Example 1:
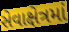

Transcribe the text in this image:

સેવાક્ષેત્રમાં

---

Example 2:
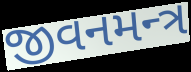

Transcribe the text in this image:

જીવનમન્ત્ર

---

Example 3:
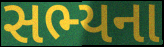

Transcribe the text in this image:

સભ્યના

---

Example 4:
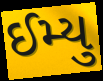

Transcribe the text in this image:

ઈમ્યુ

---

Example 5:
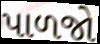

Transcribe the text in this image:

પાળજો